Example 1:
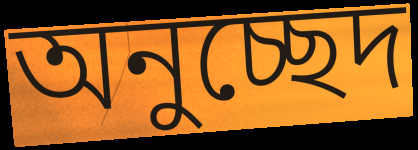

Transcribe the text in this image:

অনুচ্ছেদ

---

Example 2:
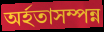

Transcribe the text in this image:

অৰ্হতাসম্পন্ন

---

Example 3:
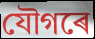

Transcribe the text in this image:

যৌগৰে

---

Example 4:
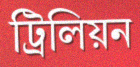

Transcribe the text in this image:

ট্ৰিলিয়ন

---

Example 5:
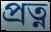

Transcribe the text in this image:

প্ৰত্ন